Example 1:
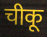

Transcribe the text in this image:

चीकू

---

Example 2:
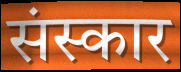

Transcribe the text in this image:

संस्‍कार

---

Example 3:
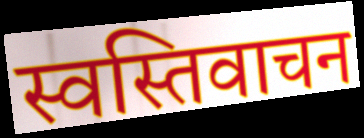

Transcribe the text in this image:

स्वस्तिवाचन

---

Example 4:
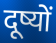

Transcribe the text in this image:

दूष्यों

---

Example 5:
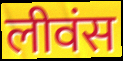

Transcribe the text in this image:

लीवंस